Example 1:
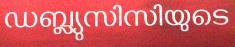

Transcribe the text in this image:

ഡബ്ല്യുസിസിയുടെ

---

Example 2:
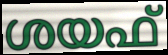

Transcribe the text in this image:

ശയഫ്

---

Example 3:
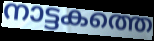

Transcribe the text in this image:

നാട്ടകത്തെ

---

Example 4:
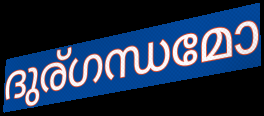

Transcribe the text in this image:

ദുര്ഗന്ധമോ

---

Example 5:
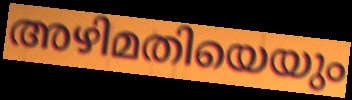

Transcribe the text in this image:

അഴിമതിയെയും